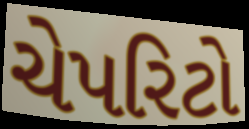
ચેપરિટો